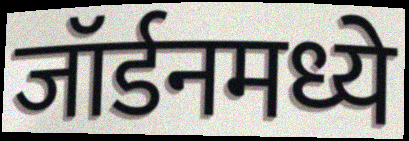
जॉर्डनमध्ये